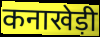
कनाखेड़ी